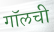
गॉलची